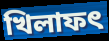
খিলাফৎ